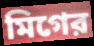
মিগের